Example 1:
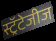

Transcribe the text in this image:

स्ट्रॅटेजीज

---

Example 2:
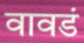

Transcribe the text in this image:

वावडं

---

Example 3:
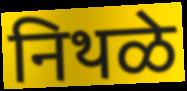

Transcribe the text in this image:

निथळे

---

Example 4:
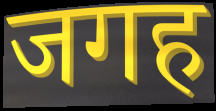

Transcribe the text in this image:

जगह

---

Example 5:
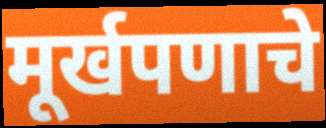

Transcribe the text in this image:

मूर्खपणाचे